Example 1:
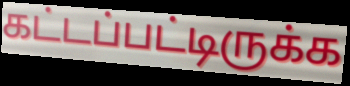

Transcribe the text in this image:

கட்டப்பட்டிருக்க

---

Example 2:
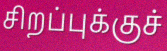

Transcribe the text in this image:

சிறப்புக்குச்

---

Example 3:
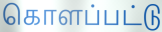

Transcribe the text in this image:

கொளப்பட்டு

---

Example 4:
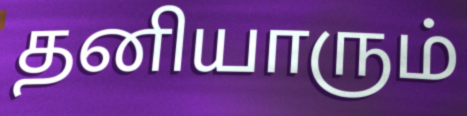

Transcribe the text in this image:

தனியாரும்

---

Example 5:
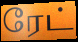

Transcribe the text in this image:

ரேட்